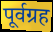
पूर्वग्रह